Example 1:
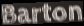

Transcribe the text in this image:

Barton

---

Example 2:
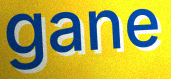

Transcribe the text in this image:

gane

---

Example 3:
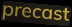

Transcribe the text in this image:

precast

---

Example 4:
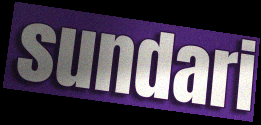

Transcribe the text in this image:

sundari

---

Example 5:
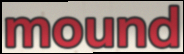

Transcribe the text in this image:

mound